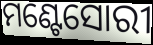
ମଣ୍ଟେସୋରୀ